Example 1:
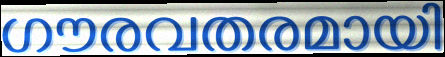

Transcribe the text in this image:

ഗൗരവതരമായി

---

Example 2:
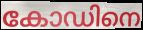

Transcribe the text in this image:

കോഡിനെ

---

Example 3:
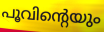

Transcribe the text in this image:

പൂവിന്റെയും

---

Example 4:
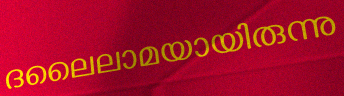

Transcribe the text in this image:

ദലൈലാമയായിരുന്നു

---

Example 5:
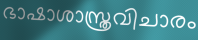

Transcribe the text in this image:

ഭാഷാശാസ്ത്രവിചാരം